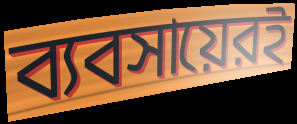
ব্যবসায়েরই